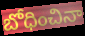
బోధించినా